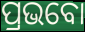
ପ୍ରଭବୋ